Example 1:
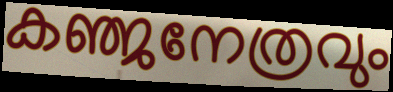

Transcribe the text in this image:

കഞ്ജനേത്രവും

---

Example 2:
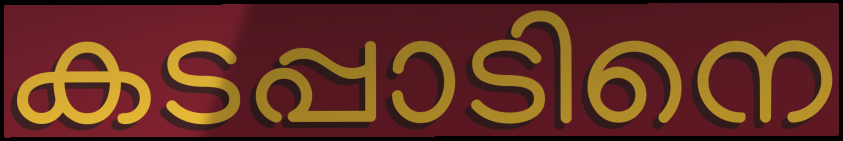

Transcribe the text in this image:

കടപ്പാടിനെ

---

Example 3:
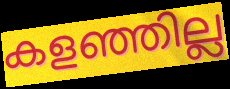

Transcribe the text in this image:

കളഞ്ഞില്ല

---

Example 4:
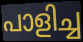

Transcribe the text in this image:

പാളിച്ച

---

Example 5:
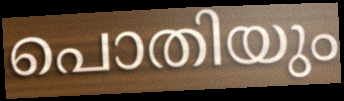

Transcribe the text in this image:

പൊതിയും